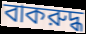
বাকৰুদ্ধ